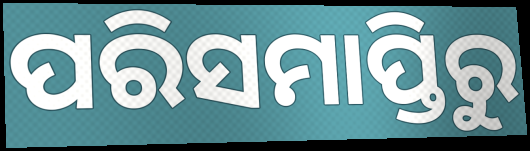
ପରିସମାପ୍ତିରୁ